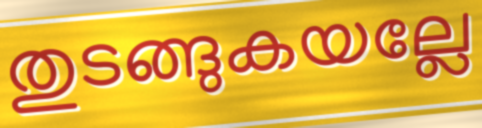
തുടങ്ങുകയല്ലേ